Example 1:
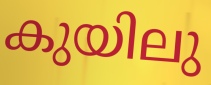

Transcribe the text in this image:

കുയിലു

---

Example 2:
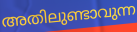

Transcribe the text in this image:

അതിലുണ്ടാവുന്ന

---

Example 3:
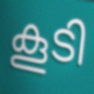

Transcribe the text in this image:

കൂടി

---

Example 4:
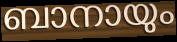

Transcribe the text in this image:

ബാനായും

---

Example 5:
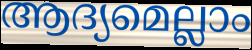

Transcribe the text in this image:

ആദ്യമെല്ലാം